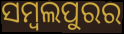
ସମ୍ୱଲପୁରର